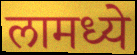
लामध्ये